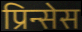
प्रिन्सेस